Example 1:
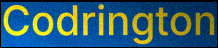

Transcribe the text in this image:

Codrington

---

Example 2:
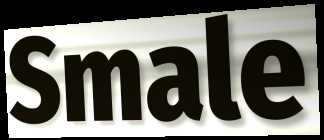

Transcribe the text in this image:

Smale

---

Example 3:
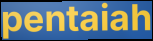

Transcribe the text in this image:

pentaiah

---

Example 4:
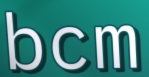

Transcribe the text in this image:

bcm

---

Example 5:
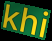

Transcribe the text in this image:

khi